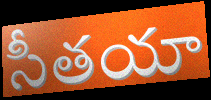
సీతయా